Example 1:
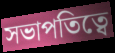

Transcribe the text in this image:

সভাপতিত্বে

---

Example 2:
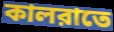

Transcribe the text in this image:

কালরাতে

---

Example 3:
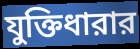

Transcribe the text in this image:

যুক্তিধারার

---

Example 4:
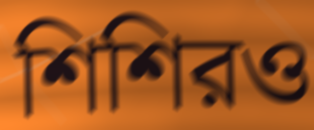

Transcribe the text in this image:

শিশিরও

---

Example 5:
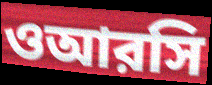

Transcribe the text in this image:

ওআরসি